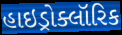
હાઇડ્રોક્લૉરિક